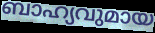
ബാഹ്യവുമായ